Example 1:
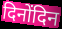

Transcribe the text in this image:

दिनोंदिन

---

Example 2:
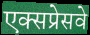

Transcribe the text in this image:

एक्सप्रेसवे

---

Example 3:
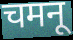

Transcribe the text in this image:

चमनू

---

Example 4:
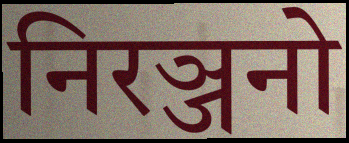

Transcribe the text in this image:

निरञ्जनो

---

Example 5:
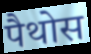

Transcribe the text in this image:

पैथोस